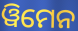
ୱିମେନ